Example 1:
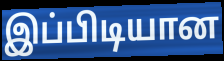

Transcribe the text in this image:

இப்பிடியான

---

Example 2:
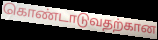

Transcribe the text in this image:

கொண்டாடுவதற்கான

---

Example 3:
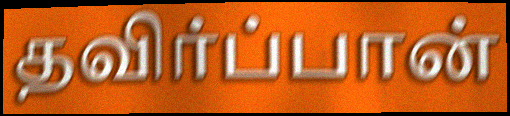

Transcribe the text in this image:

தவிர்ப்பான்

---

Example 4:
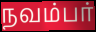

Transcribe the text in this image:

நவம்பர்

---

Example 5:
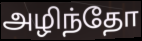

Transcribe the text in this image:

அழிந்தோ